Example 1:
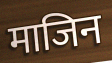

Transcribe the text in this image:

माजिन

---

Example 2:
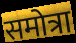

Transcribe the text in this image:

समोत्रा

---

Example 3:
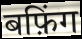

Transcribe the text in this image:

बफ़िंग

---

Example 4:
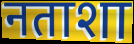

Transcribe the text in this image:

नताशा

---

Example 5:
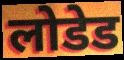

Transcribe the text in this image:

लोडेड